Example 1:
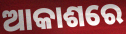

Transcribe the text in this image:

ଆକାଶରେ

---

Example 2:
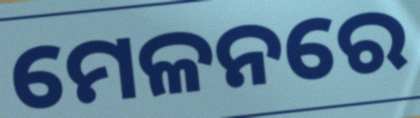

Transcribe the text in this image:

ମେଳନରେ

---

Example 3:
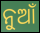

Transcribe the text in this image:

ନୁଆଁ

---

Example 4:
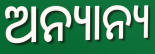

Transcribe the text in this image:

ଅନ୍ୟାନ୍ୟ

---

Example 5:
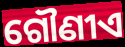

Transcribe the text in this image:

ଗୌଣୀଏ